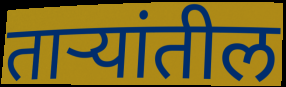
ताऱ्यांतील